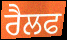
ਰੈਲਫ